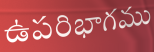
ఉపరిభాగము